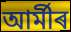
আৰ্মীৰ